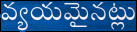
వ్యయమైనట్లు